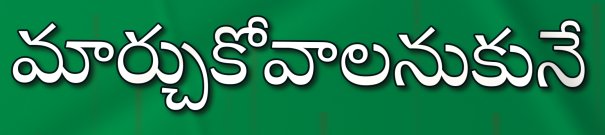
మార్చుకోవాలనుకునే